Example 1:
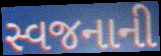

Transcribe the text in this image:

સ્વજનાની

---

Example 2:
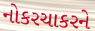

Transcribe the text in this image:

નોકરચાકરને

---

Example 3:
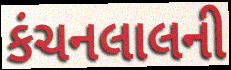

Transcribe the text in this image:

કંચનલાલની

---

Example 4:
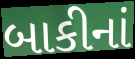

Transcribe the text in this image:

બાકીનાં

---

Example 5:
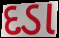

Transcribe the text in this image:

દડા